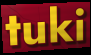
tuki